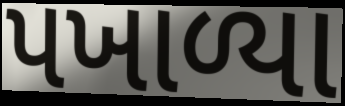
પખાળ્યા